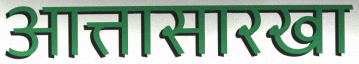
आत्तासारखा